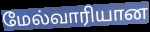
மேல்வாரியான